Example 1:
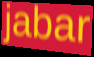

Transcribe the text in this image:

jabar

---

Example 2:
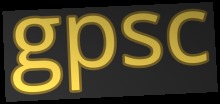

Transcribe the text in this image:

gpsc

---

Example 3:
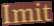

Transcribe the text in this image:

Imit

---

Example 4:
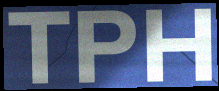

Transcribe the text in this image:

TPH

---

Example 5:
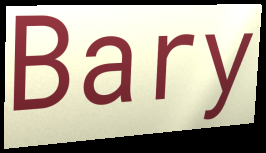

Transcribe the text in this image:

Bary